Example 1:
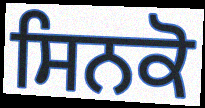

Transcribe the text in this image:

ਸਿਨਕੋ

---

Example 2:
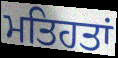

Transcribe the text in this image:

ਮਤਿਹਤਾਂ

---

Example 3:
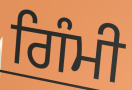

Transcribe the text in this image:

ਗਿੰਮੀ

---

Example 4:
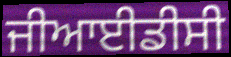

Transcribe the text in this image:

ਜੀਆਈਡੀਸੀ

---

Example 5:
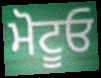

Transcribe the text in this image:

ਮੋਟੂਓ